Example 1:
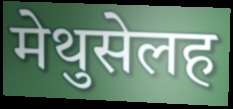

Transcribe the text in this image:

मेथुसेलह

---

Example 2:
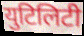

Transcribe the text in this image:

युटिलिटी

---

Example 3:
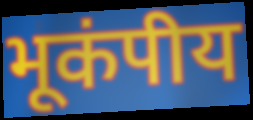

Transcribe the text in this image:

भूकंपीय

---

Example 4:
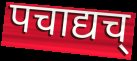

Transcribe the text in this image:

पचाद्यच्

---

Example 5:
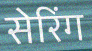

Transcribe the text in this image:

सेरिंग